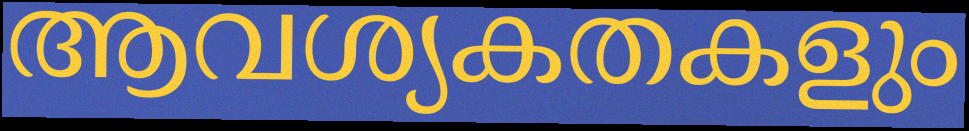
ആവശ്യകതകളും